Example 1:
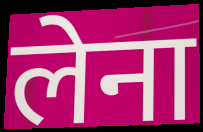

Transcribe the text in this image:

लेना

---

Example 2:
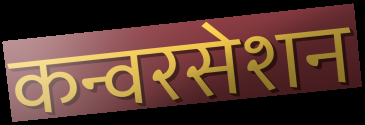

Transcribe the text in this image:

कन्वरसेशन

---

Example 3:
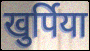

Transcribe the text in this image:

खुर्पिया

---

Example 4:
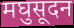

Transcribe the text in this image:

मघुसूदन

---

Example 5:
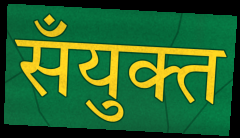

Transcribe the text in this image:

सँयुक्त